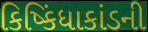
કિષ્કિંધાકાંડની